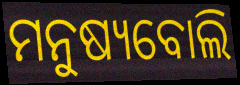
ମନୁଷ୍ୟବୋଲି